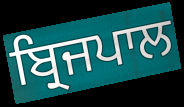
ਬ੍ਰਿਜਪਾਲ